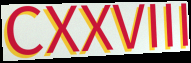
CXXVIII